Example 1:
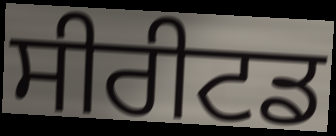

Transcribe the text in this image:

ਸੀਰੀਟਡ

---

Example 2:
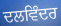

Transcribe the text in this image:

ਦਲਵਿੰਦਰ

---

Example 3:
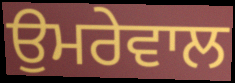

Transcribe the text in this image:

ਉਮਰੇਵਾਲ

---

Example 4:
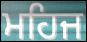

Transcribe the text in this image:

ਮਹਿਜ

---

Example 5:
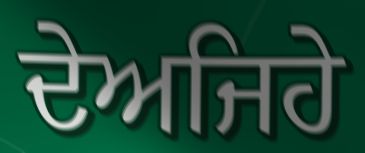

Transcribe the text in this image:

ਦੇਅਜਿਹੇ